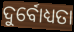
ଦୁର୍ବୋଧ୍ୟତା